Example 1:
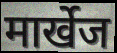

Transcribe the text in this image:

मार्खेज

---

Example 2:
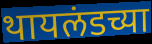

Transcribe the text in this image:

थायलंडच्या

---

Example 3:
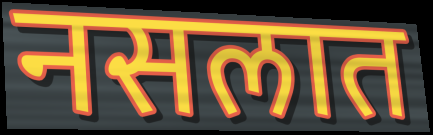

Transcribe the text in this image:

नसलात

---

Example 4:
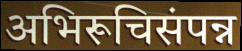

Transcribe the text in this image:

अभिरूचिसंपन्न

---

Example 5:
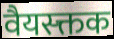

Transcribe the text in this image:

वैयस्क्तक